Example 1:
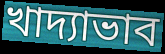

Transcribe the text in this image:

খাদ্যাভাব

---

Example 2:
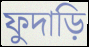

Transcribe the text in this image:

ফুদাড়ি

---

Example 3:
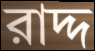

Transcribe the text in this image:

রাদ্দ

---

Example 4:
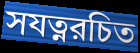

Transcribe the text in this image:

সযত্নরচিত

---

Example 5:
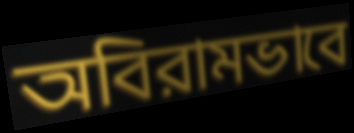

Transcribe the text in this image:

অবিরামভাবে